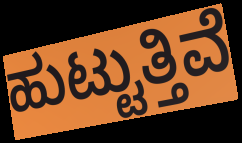
ಹುಟ್ಟುತ್ತಿವೆ